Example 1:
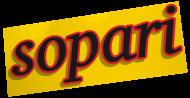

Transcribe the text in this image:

sopari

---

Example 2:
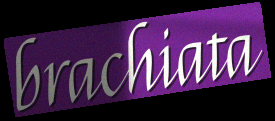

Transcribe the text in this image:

brachiata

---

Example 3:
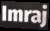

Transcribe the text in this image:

Imraj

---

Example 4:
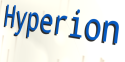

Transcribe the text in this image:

Hyperion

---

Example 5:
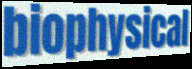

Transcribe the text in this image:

biophysical